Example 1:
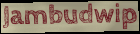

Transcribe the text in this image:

Jambudwip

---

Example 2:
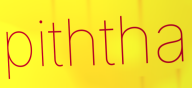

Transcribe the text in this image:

piththa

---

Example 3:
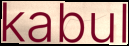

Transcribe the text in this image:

kabul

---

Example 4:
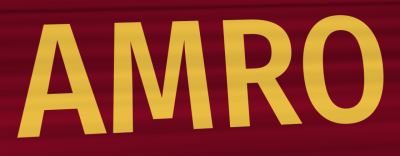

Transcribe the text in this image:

AMRO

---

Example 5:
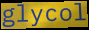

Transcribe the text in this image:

glycol